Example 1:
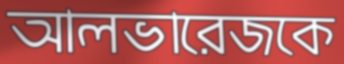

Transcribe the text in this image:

আলভারেজকে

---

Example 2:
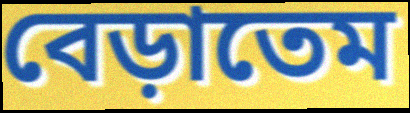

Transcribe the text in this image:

বেড়াতেম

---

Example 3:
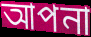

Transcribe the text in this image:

আপনা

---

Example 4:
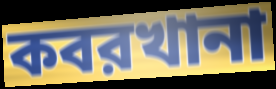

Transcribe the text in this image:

কবরখানা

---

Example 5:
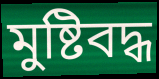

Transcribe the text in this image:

মুষ্টিবদ্ধ